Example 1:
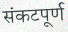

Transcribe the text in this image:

संकटपूर्ण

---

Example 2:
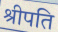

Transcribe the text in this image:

श्रीपति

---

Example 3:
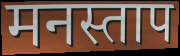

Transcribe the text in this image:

मनस्ताप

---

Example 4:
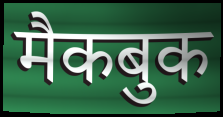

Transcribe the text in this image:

मैकबुक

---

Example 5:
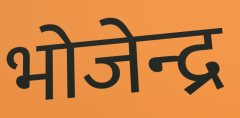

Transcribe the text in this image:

भोजेन्द्र